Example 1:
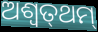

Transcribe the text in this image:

ଅଶ୍ୱତ୍‌ଥମ୍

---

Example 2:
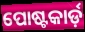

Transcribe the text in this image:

ପୋଷ୍ଟକାର୍ଡ଼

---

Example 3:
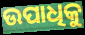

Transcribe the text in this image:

ଉପାଧିକୁ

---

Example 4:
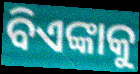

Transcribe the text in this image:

ବିଏଙ୍କାକୁ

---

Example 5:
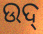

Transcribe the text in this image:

ଉଦ୍